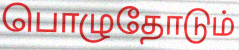
பொழுதோடும்